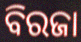
ବିରଜା